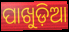
ପାଖୁଡ଼ିଆ